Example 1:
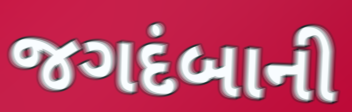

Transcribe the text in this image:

જગદંબાની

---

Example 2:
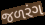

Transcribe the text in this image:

જળરંગ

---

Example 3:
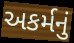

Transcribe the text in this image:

અકર્મનું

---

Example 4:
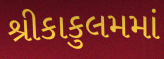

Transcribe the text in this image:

શ્રીકાકુલમમાં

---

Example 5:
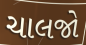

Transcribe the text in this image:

ચાલજો